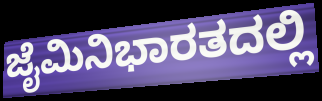
ಜೈಮಿನಿಭಾರತದಲ್ಲಿ